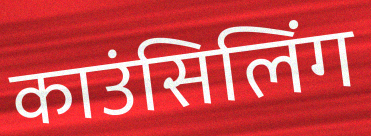
काउंसिलिंग